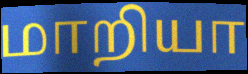
மாறியா